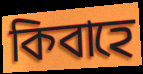
কিবাহে